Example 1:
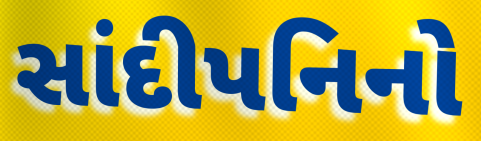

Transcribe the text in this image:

સાંદીપનિનો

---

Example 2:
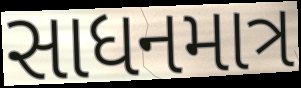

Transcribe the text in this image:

સાધનમાત્ર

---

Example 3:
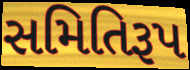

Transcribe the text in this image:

સમિતિરૂપ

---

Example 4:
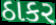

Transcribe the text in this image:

ઠાકર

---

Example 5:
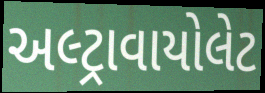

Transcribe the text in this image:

અલ્ટ્રાવાયોલેટ